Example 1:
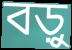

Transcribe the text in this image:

বড়ু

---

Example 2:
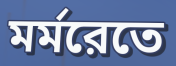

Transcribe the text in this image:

মর্মরেতে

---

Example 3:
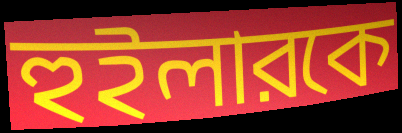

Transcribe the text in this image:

হুইলারকে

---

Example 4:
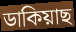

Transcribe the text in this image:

ডাকিয়াছ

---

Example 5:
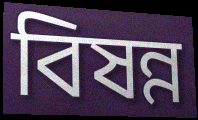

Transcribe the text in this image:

বিষন্ন